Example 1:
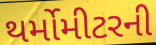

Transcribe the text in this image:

થર્મોમીટરની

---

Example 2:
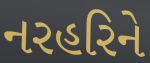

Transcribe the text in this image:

નરહરિને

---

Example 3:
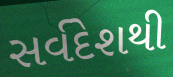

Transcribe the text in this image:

સર્વદેશથી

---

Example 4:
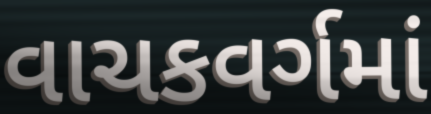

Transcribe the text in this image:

વાચકવર્ગમાં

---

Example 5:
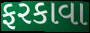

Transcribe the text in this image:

ફરકાવા